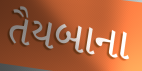
તૈયબાના